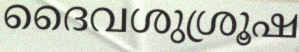
ദൈവശുശ്രൂഷ